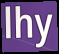
lhy